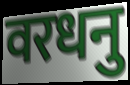
वरधनु